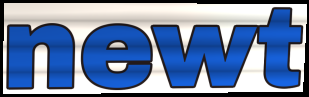
newt